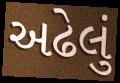
અઢેલું